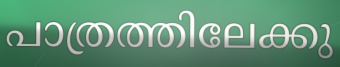
പാത്രത്തിലേക്കു